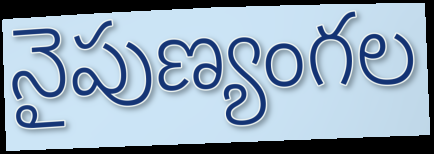
నైపుణ్యంగల